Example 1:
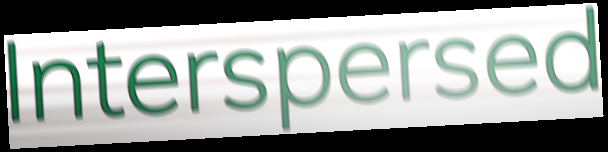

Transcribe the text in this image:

Interspersed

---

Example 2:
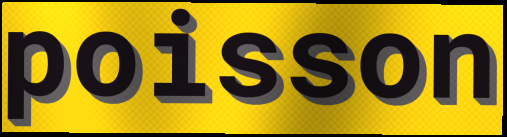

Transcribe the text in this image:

poisson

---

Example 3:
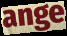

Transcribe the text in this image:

ange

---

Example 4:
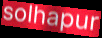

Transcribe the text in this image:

solhapur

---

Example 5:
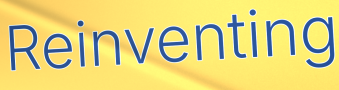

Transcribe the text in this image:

Reinventing